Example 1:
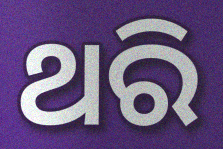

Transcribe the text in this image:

ଥରି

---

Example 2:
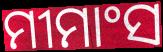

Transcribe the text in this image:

ମୀମାଂସ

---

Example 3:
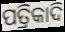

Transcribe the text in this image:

ପତ୍ରିକାଦି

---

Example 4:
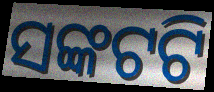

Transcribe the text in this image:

ସଙ୍କଟଟି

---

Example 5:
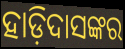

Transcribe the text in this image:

ହାଡ଼ିଦାସଙ୍କର